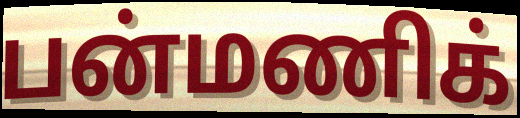
பன்மணிக்